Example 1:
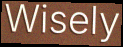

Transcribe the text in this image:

Wisely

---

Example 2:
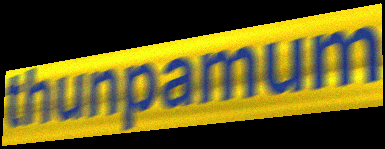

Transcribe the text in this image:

thunpamum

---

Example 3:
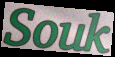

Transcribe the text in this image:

Souk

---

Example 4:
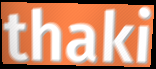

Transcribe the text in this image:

thaki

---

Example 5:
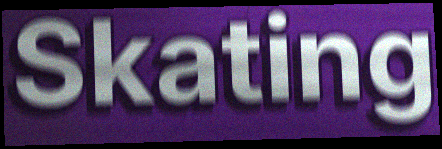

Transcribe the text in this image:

Skating